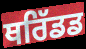
ਥਰਿੱਡਡ